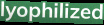
lyophilized